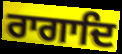
ਰਾਗਾਦਿ